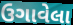
ઉગાવેલા